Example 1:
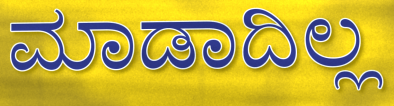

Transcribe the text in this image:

ಮಾಡಾದಿಲ್ಲ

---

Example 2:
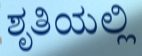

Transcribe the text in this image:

ಶೃತಿಯಲ್ಲಿ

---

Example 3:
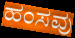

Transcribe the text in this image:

ಹಂಸವು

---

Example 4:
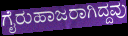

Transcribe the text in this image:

ಗೈರುಹಾಜರಾಗಿದ್ದವು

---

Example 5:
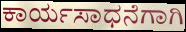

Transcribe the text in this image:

ಕಾರ್ಯಸಾಧನೆಗಾಗಿ